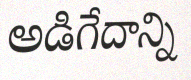
అడిగేదాన్ని